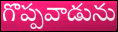
గొప్పవాడును